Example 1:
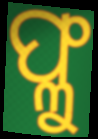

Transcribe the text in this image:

ଫ୍ଳୁ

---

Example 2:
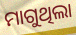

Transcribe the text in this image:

ମାଗୁଥିଲା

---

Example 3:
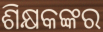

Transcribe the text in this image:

ଶିକ୍ଷକଙ୍କର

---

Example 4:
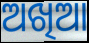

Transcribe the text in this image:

ଅଖିଆ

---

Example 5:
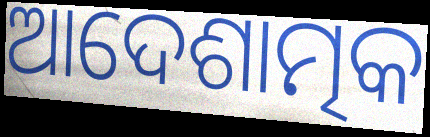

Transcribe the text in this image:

ଆଦେଶାତ୍ମକ